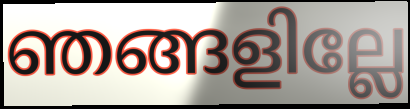
ഞങ്ങളില്ലേ